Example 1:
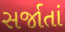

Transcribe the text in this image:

સર્જાતાં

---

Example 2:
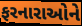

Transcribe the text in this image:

ફરનારાઓને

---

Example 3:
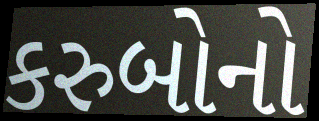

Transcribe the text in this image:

કરુબોનો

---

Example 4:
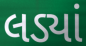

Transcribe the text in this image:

લડ્યાં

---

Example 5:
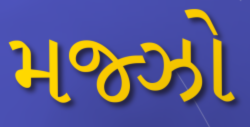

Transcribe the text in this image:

મજ્ઝો